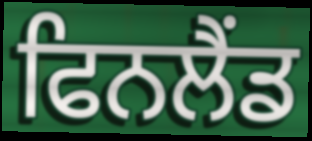
ਫਿਨਲੈਂਡ